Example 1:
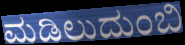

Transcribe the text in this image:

ಮಡಿಲುದುಂಬಿ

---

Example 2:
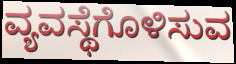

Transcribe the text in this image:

ವ್ಯವಸ್ಥೆಗೊಳಿಸುವ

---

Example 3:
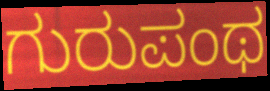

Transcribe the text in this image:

ಗುರುಪಂಥ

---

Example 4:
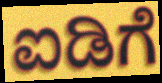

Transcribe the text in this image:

ಐಡಿಗೆ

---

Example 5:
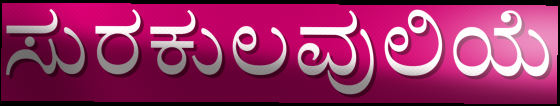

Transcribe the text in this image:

ಸುರಕುಲವುಲಿಯೆ